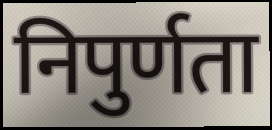
निपुर्णता